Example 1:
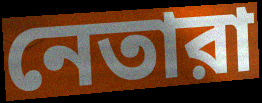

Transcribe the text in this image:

নেতারা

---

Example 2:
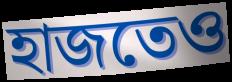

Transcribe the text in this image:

হাজতেও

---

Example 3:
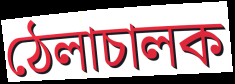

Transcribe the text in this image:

ঠেলাচালক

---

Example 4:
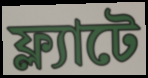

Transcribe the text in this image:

ফ্ল্যাটে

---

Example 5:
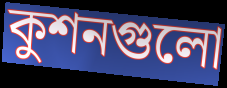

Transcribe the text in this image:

কুশনগুলো